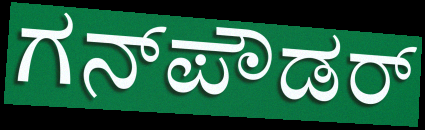
ಗನ್‌ಪೌಡರ್